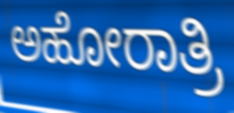
ಅಹೋರಾತ್ರಿ